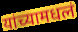
यांच्यामधलं